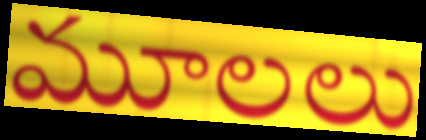
మూలలు